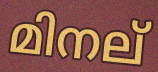
മിനല്